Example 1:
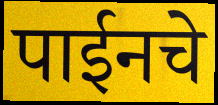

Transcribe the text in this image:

पाईनचे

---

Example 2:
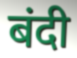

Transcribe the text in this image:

बंदी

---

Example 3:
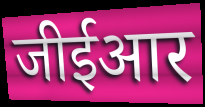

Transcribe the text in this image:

जीईआर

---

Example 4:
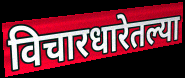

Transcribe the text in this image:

विचारधारेतल्या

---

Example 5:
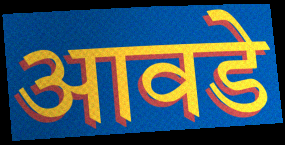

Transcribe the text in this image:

आवडे